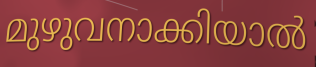
മുഴുവനാക്കിയാൽ